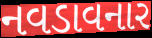
નવડાવનાર